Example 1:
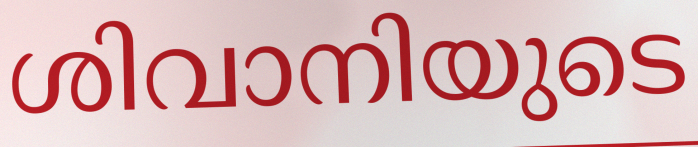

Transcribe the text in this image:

ശിവാനിയുടെ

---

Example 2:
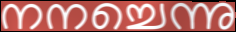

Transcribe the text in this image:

നനച്ചെന്നു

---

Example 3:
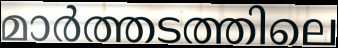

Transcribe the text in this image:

മാർത്തടത്തിലെ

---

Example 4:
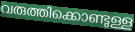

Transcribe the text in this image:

വരുത്തിക്കൊണ്ടുള്ള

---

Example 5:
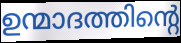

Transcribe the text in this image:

ഉന്മാദത്തിന്റെ